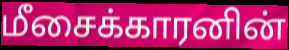
மீசைக்காரனின்